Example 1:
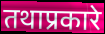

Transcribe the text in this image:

तथाप्रकारे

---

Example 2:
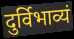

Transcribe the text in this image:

दुर्विभाव्यं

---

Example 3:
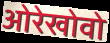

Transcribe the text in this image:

ओरेखोवो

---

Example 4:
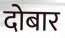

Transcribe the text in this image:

दोबार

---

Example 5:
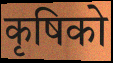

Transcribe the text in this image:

कृषिको